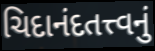
ચિદાનંદતત્ત્વનું